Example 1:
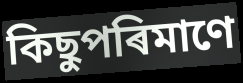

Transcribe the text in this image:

কিছুপৰিমাণে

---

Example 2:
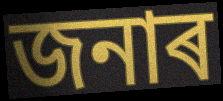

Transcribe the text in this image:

জনাৰ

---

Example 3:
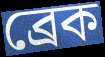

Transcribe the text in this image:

ব্ৰেক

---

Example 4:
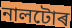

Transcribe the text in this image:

নালটোৰ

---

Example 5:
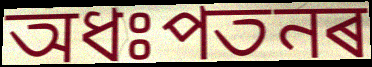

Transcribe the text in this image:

অধঃপতনৰ